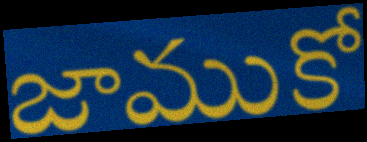
జాముకో